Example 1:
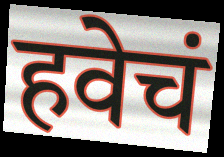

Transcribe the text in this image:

हवेचं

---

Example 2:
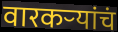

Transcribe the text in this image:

वारकऱ्यांचं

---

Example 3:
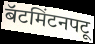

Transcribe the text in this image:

बॅटमिंटनपटू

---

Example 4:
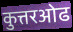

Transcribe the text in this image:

कुत्तरओढ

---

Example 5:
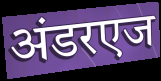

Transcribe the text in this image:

अंडरएज